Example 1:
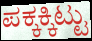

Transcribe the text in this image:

ಪಕ್ಕಕ್ಕಿಟ್ಟು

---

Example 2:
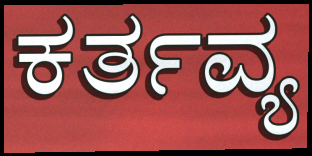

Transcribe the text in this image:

ಕರ್ತವ್ಯ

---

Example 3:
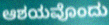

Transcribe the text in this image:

ಆಶಯವೊಂದು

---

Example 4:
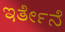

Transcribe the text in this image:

ಇರ್ತೇನೆ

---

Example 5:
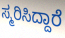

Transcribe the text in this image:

ಸ್ಮರಿಸಿದ್ದಾರೆ